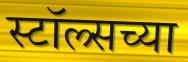
स्टॉल्सच्या